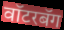
वॉटरबॅग